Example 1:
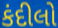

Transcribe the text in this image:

કંદીલો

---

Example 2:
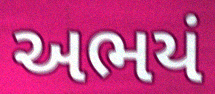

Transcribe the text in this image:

અભયં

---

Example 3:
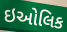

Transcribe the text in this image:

ઇઓલિક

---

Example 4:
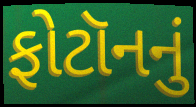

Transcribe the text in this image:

ફોટૉનનું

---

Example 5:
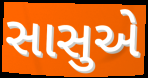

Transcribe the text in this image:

સાસુએ